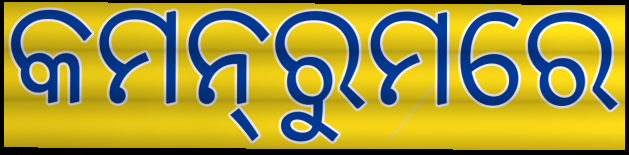
କମନ୍‌ରୁମରେ